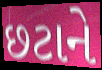
છટાને